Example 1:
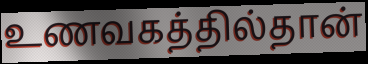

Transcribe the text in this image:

உணவகத்தில்தான்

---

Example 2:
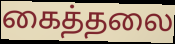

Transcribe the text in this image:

கைத்தலை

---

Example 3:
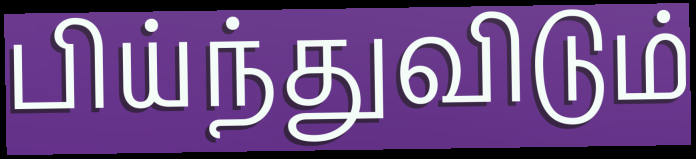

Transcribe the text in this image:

பிய்ந்துவிடும்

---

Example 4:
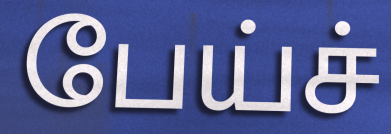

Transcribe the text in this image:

பேய்ச்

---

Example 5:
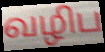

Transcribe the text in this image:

வழிப